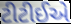
ટીટીઈએ